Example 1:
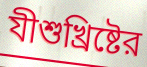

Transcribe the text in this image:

যীশুখ্রিষ্টের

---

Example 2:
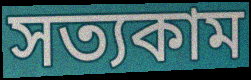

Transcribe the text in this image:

সত্যকাম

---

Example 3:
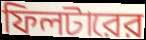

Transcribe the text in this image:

ফিলটারের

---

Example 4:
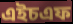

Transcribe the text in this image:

এইচএফ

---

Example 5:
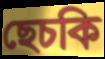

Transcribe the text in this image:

ছেচকি